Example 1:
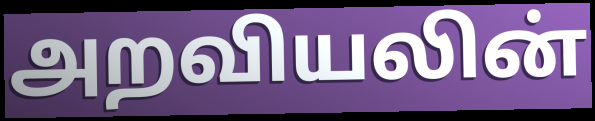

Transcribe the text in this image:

அறவியலின்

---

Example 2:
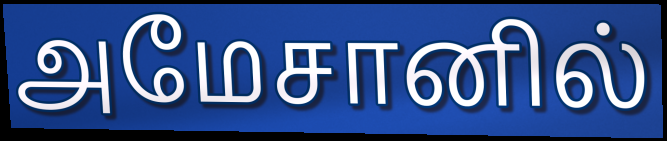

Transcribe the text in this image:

அமேசானில்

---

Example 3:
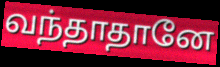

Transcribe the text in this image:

வந்தாதானே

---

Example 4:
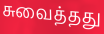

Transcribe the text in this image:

சுவைத்தது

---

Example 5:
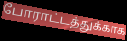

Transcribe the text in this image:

போராட்டத்துக்காக